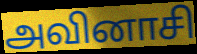
அவினாசி